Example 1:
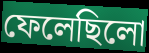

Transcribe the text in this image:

ফেলেছিলো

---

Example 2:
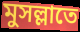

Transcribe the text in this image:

মুসল্লাতে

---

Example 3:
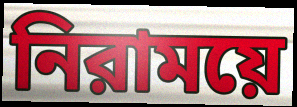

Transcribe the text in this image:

নিরাময়ে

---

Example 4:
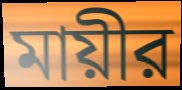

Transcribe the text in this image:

মায়ীর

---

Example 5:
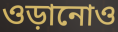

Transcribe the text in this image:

ওড়ানোও